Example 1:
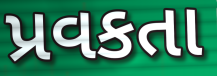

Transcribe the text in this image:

પ્રવકતા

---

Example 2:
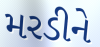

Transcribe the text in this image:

મરડીને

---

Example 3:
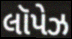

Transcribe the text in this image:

લૉપેઝ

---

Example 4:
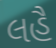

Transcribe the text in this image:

લહૈ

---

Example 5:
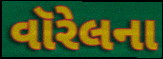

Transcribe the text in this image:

વૉરેલના